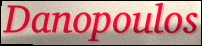
Danopoulos